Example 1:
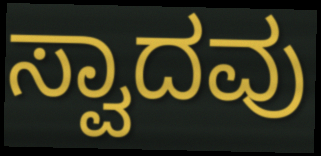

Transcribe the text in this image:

ಸ್ವಾದವು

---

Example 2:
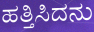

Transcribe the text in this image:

ಹತ್ತಿಸಿದನು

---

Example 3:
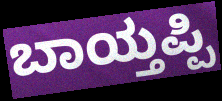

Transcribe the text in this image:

ಬಾಯ್ತಪ್ಪಿ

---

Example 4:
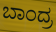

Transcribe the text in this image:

ಬಾಂದ್ರ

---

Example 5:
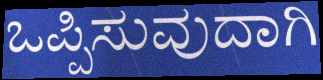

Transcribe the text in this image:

ಒಪ್ಪಿಸುವುದಾಗಿ